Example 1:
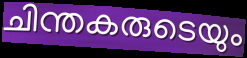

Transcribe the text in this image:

ചിന്തകരുടെയും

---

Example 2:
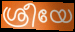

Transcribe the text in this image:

ശ്രീയേ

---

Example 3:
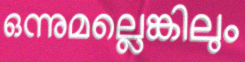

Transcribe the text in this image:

ഒന്നുമല്ലെങ്കിലും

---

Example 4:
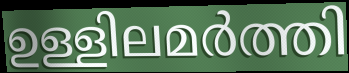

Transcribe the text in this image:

ഉള്ളിലമർത്തി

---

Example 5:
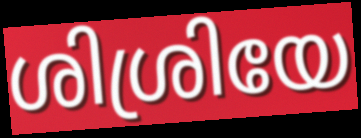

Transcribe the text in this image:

ശിശ്രിയേ